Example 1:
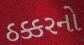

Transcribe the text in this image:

ઠક્કરનો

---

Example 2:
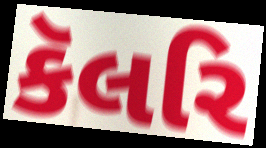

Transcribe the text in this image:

કૅલરિ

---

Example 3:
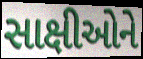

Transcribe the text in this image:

સાક્ષીઓને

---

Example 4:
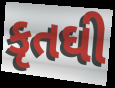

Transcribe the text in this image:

કૃતઘી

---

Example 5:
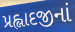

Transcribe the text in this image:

પ્રહ્લાદજીનાં